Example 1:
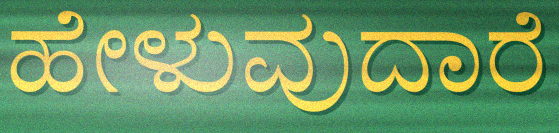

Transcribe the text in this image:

ಹೇಳುವುದಾರೆ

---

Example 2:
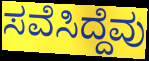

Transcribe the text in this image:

ಸವೆಸಿದ್ದೆವು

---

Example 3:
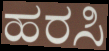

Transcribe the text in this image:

ಹರಸಿ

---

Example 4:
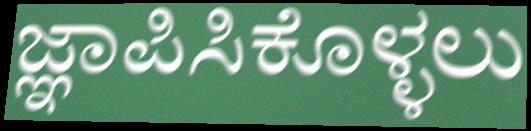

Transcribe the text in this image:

ಜ್ಞಾಪಿಸಿಕೊಳ್ಳಲು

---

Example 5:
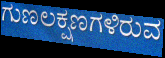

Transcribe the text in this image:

ಗುಣಲಕ್ಷಣಗಳಿರುವ